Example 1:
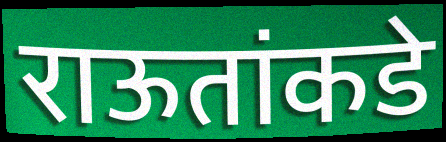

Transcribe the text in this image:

राऊतांकडे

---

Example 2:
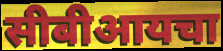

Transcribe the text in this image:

सीबीआयचा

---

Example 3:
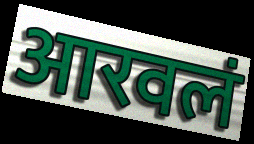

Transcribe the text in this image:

आरवलं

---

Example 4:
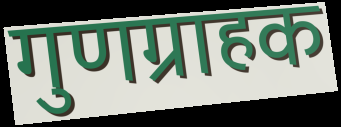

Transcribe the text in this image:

गुणग्राहक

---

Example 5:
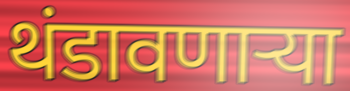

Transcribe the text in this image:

थंडावणाऱ्या